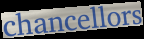
chancellors